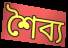
শৈব্য